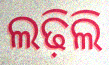
ଲଢ଼ିଲି